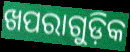
ଖପରାଗୁଡ଼ିକ